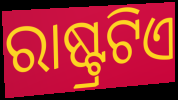
ରାଷ୍ଟ୍ରଟିଏ